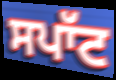
ਸਪਾੱਟ